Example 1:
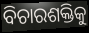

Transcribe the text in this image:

ବିଚାରଶକ୍ତିକୁ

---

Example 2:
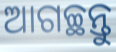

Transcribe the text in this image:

ଆଗଚ୍ଛନ୍ତୁ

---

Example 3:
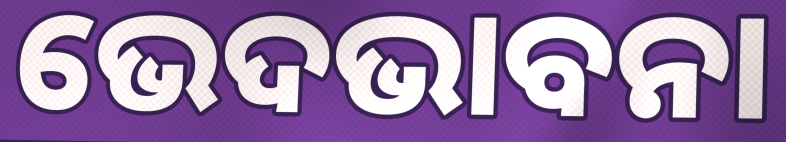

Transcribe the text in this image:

ଭେଦଭାବନା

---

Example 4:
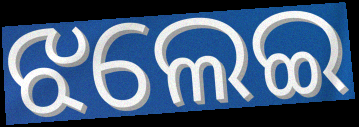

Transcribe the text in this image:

ଝଲେଇ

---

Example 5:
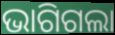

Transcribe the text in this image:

ଭାଗିଗଲା